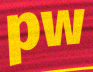
pw